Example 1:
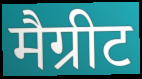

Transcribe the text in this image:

मैग्रीट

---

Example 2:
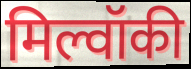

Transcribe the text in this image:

मिल्वॉकी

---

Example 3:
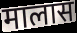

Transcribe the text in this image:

मालास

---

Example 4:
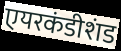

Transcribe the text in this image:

एयरकंडीशंड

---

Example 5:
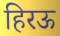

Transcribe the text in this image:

हिरऊ